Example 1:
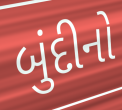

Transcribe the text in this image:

બુંદીનો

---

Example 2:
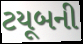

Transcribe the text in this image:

ટયૂબની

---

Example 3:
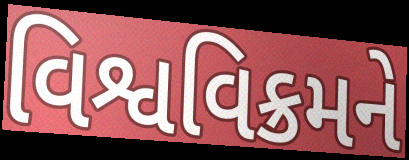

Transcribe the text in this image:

વિશ્વવિક્રમને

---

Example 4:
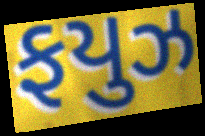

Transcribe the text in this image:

ફયુઝ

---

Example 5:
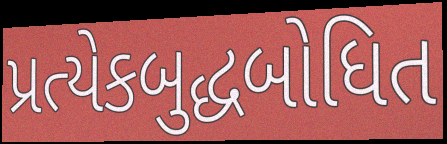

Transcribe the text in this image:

પ્રત્યેકબુદ્ધબોધિત